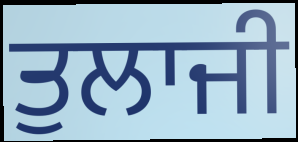
ਤੁਲਾਜੀ